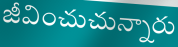
జీవించుచున్నారు